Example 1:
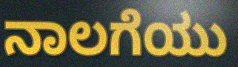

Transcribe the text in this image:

ನಾಲಗೆಯು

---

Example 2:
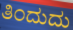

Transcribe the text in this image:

ತಿಂದುದು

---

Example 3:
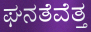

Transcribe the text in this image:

ಘನತೆವೆತ್ತ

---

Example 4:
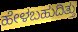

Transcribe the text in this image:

ಹೇಳಬಹುದಿತ್ತು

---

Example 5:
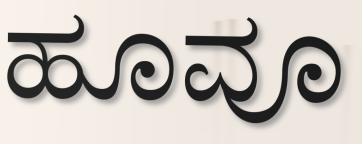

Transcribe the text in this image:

ಹೂವೂ